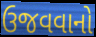
ઉજવવાનો